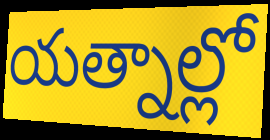
యత్నాల్లో